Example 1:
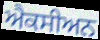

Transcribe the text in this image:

ਐਕਸੀਅਨ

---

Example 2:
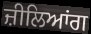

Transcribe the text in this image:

ਜ਼ੀਲਿਆਂਗ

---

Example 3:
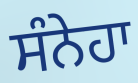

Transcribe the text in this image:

ਸੰਨੇਹਾ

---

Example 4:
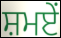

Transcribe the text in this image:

ਸ਼ਮਏਂ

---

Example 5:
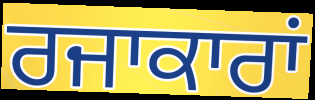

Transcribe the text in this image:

ਰਜਾਕਾਰਾਂ